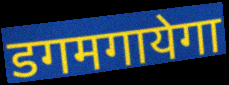
डगमगायेगा